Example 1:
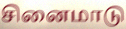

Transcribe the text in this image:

சினைமாடு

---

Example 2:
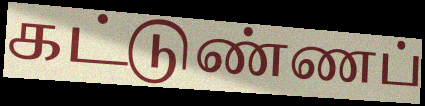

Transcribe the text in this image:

கட்டுண்ணப்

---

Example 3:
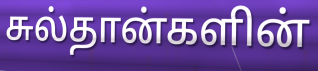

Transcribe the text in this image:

சுல்தான்களின்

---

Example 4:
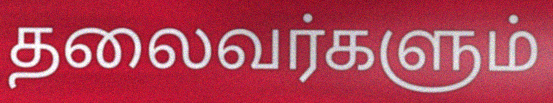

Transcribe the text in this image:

தலைவர்களும்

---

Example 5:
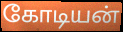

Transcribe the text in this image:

கோடியன்